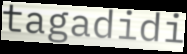
tagadidi